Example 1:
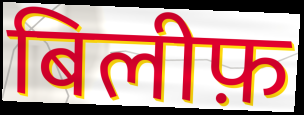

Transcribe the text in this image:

बिलीफ़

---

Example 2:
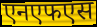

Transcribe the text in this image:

एनएफएस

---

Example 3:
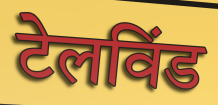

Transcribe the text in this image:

टेलविंड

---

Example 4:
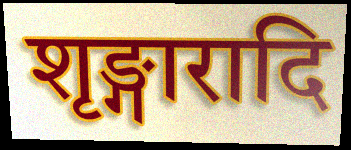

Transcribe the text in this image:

शृङ्गारादि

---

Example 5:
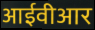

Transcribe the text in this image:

आईवीआर